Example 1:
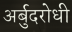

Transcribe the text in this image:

अर्बुदरोधी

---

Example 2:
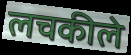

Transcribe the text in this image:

लचकीले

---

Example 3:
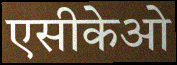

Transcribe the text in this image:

एसीकेओ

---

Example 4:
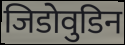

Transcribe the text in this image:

जिडोवुडिन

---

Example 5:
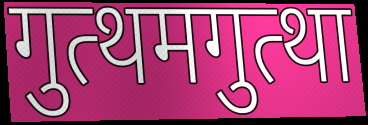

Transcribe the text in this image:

गुत्थमगुत्था